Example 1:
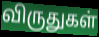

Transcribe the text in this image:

விருதுகள்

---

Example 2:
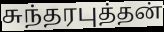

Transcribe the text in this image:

சுந்தரபுத்தன்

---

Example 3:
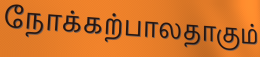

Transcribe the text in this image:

நோக்கற்பாலதாகும்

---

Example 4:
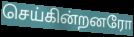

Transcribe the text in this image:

செய்கின்றனரோ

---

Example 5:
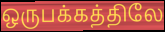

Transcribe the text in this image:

ஒருபக்கத்திலே